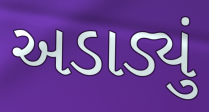
અડાડ્યું